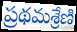
ప్రథమశ్రేణి